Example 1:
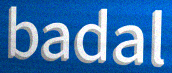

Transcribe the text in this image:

badal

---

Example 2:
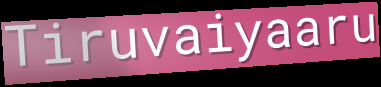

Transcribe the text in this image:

Tiruvaiyaaru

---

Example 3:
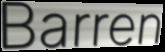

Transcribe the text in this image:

Barren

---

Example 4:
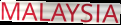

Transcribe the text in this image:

MALAYSIA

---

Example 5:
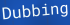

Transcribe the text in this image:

Dubbing